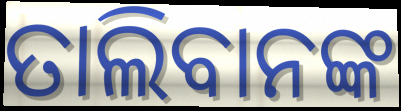
ତାଲିବାନଙ୍କ